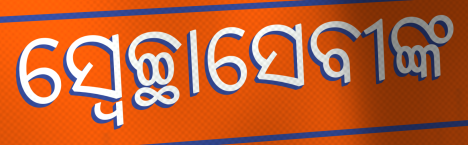
ସ୍ୱେଚ୍ଛାସେବୀଙ୍କ